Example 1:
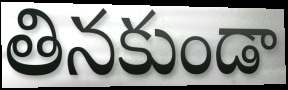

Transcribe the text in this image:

తినకుండా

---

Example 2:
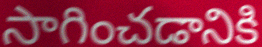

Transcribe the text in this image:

సాగించడానికి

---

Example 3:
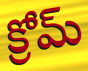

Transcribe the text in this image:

క్రోమ్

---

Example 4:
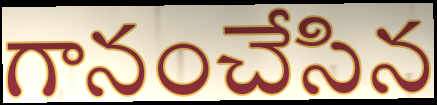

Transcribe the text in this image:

గానంచేసిన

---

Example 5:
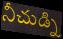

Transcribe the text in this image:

నీచుడ్ని